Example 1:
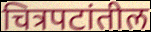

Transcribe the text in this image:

चित्रपटांतील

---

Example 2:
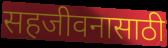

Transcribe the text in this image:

सहजीवनासाठी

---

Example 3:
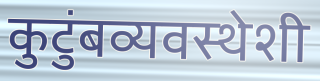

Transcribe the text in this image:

कुटुंबव्यवस्थेशी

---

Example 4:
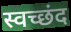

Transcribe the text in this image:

स्वच्छंद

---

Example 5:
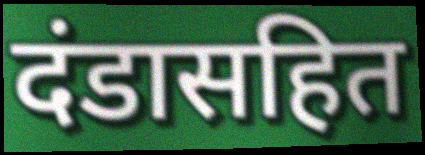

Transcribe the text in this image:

दंडासहित